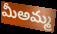
మీఅమ్మ